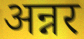
अन्नर